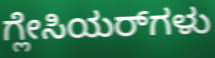
ಗ್ಲೇಸಿಯರ್‌ಗಳು